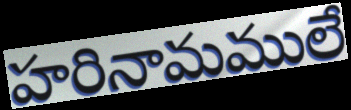
హరినామములే